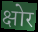
क्षोर